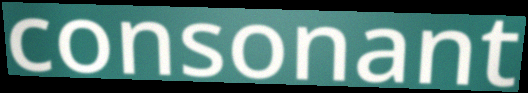
consonant